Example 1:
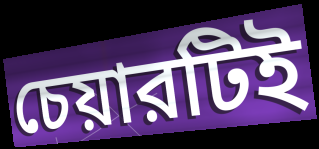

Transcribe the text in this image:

চেয়ারটিই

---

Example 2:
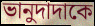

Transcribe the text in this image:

ভানুদাদাকে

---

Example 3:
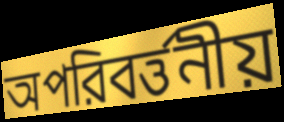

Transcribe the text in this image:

অপরিবর্ত্তনীয়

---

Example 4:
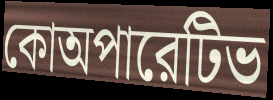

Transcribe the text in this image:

কোঅপারেটিভ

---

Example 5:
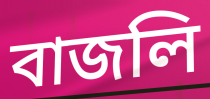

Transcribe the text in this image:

বাজলি